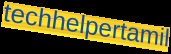
techhelpertamil